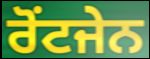
ਰੋਂਟਜੇਨ